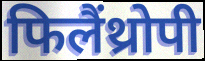
फिलैंथ्रोपी